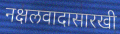
नक्षलवादासारखी